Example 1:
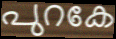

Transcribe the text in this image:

പുറകേ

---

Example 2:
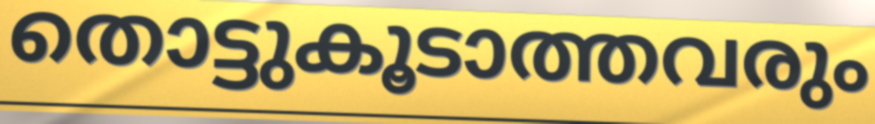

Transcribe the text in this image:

തൊട്ടുകൂടാത്തവരും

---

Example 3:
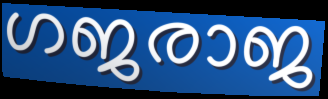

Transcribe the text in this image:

ഗജരാജ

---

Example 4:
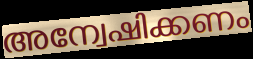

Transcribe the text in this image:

അന്വേഷിക്കണം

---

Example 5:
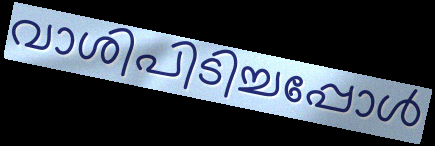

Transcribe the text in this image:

വാശിപിടിച്ചപ്പോൾ